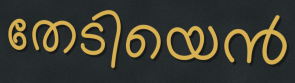
തേടിയെൻ